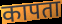
कापता